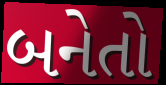
બનેતો